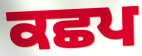
ਕਛਪ